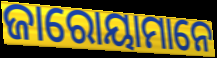
ଜାରୋୟାମାନେ